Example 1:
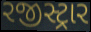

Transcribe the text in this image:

રજીસ્ટ્રાર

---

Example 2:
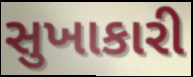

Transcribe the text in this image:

સુખાકારી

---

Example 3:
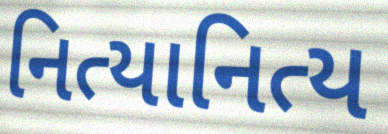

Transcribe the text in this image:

નિત્યાનિત્ય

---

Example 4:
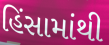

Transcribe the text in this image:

હિંસામાંથી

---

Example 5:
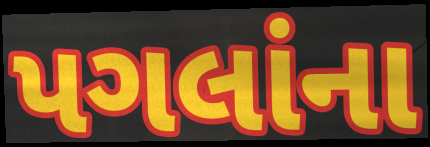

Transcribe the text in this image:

પગલાંના